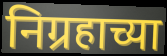
निग्रहाच्या